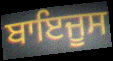
ਬਾਇਜੂਸ